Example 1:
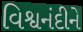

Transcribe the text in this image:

વિશ્વનંદીને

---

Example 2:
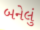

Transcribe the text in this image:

બનેલું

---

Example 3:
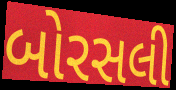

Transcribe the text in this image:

બોરસલી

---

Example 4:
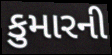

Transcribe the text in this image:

કુમારની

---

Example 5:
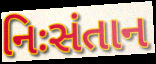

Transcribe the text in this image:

નિઃસંતાન